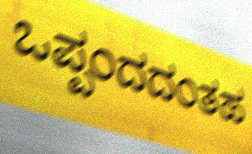
ಒಪ್ಪಂದದಂತಹ